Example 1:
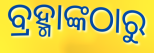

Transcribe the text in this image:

ବ୍ରହ୍ମାଙ୍କଠାରୁ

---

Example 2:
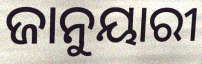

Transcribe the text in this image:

ଜାନୁୟାରୀ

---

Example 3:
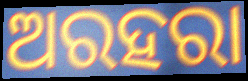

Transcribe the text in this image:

ଅରହରା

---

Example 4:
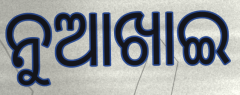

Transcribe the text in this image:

ନୁଆଖାଇ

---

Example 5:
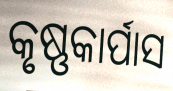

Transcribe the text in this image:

କୃଷ୍ଣକାର୍ପାସ